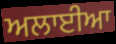
ਅਲਾਈਆ